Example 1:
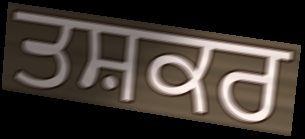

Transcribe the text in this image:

ਤਸ਼ਕਰ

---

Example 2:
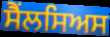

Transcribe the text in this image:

ਸੈਂਲਸਿਅਸ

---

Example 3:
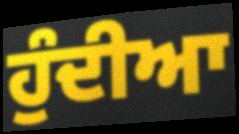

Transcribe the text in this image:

ਹੁੰਦੀਆ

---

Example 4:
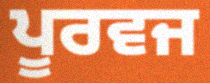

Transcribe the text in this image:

ਪੂਰਵਜ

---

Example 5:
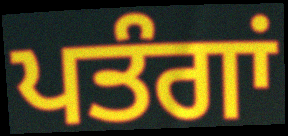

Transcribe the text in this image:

ਪਤੰਗਾਂ